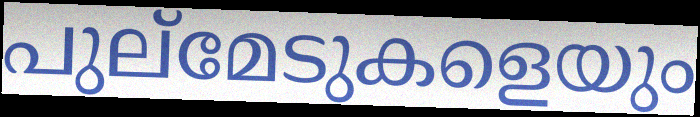
പുല്മേടുകളെയും